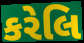
કરેલિ